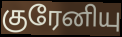
குரேனியு